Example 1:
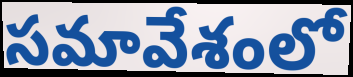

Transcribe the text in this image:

సమావేశంలో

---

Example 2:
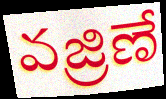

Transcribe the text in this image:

వజ్రిణే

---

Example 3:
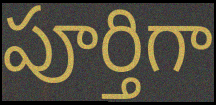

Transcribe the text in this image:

పూర్తిగా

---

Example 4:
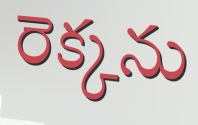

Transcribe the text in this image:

రెక్కను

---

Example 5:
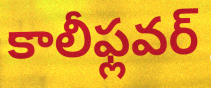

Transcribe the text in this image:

కాలీఫ్లవర్